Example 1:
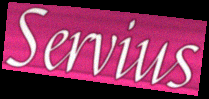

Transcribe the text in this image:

Servius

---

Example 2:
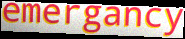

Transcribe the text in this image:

emergancy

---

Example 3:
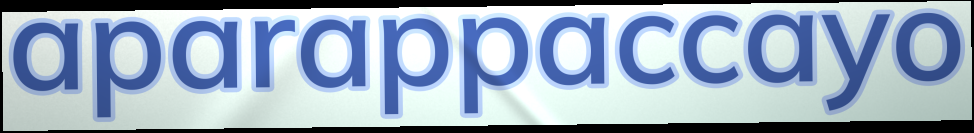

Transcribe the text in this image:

aparappaccayo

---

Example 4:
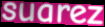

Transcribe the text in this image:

suarez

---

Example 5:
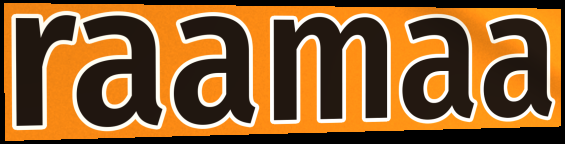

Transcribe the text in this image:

raamaa